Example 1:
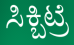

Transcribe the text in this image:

ಸಿಕ್ಬಿಟ್ರೆ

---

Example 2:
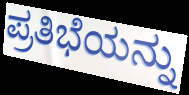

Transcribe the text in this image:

ಪ್ರತಿಭೆಯನ್ನು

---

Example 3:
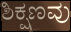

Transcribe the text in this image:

ಶಿಕ್ಷಣವು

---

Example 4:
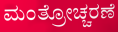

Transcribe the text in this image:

ಮಂತ್ರೋಚ್ಚರಣೆ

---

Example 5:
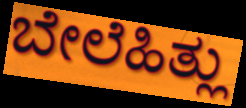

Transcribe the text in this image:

ಬೇಲೆಹಿತ್ಲು